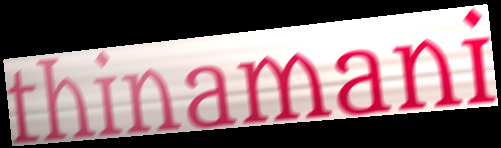
thinamani